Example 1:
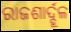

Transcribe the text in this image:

ରାଜଶାର୍ଦ୍ଦୂଳ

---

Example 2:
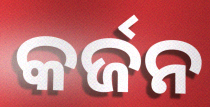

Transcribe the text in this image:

କର୍ଜନ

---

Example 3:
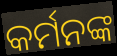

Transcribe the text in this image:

କର୍ମନଙ୍କ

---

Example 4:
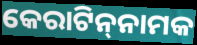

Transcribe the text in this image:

କେରାଟିନ୍‌ନାମକ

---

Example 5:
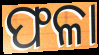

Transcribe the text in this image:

ଫଳା